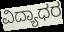
ವಿದ್ಯಾಧರ